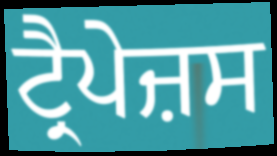
ਟ੍ਰੈਪੇਜ਼ਸ